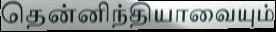
தென்னிந்தியாவையும்